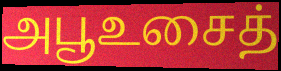
அபூஉசைத்